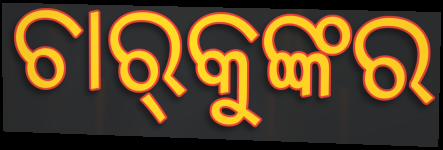
ଚାର୍‌କୁଙ୍କର